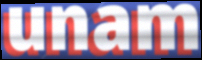
unam